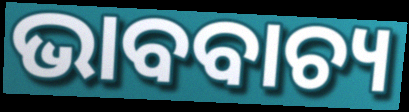
ଭାବବାଚ୍ୟ